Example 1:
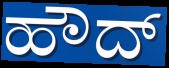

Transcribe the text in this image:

ಹೌದ್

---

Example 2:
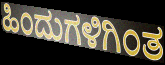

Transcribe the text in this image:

ಹಿಂದುಗಳಿಗಿಂತ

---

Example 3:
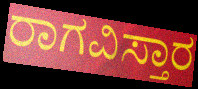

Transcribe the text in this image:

ರಾಗವಿಸ್ತಾರ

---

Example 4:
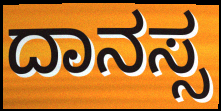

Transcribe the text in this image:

ದಾನಸ್ಸ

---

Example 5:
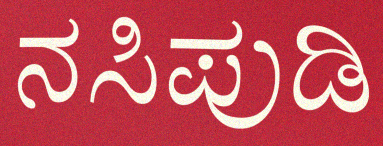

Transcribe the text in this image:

ನಸಿಪುಡಿ